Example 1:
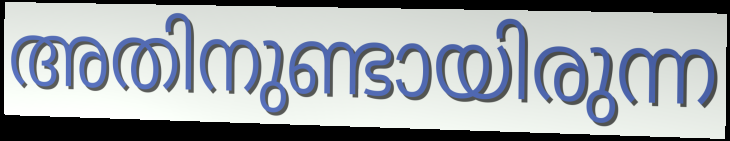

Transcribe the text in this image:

അതിനുണ്ടായിരുന്ന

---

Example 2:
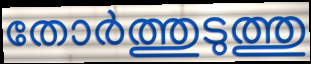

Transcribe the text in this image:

തോർത്തുടുത്തു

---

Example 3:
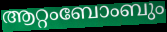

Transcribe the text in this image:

ആറ്റംബോംബും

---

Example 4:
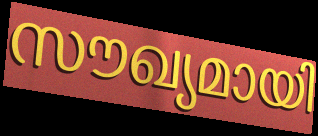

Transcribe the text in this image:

സൗഖ്യമായി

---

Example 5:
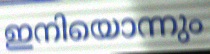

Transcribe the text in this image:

ഇനിയൊന്നും